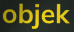
objek